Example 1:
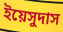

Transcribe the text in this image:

ইয়েসুদাস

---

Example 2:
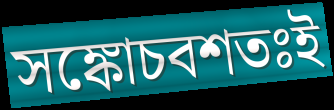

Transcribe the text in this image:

সঙ্কোচবশতঃই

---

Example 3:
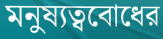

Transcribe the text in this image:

মনুষ্যত্ববোধের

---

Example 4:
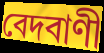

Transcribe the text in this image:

বেদবাণী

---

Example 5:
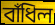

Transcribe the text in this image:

বাঁধিল